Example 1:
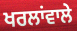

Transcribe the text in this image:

ਖਰਲਾਂਵਾਲੇ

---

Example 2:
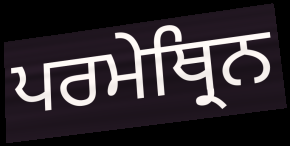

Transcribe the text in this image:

ਪਰਮੇਥ੍ਰਿਨ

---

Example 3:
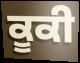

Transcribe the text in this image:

ਕੂਕੀ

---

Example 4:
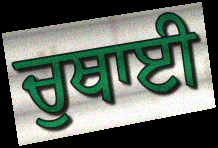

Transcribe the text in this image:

ਚੁਥਾਈ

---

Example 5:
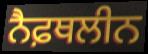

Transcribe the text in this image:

ਨੈਫ਼ਥਲੀਨ